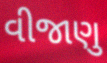
વીજાણુ